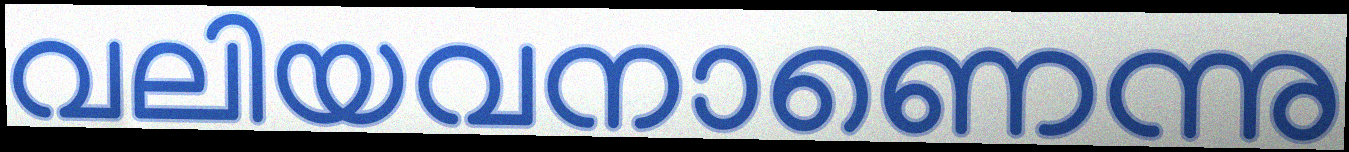
വലിയവനാണെന്നു